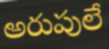
అరుపులే